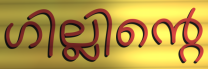
ഗില്ലിന്റെ